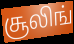
சூலிங்